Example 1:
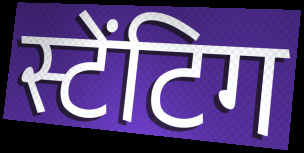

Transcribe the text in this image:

स्टेंटिग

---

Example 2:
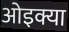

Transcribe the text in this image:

ओइक्या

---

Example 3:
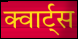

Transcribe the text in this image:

क्वार्ट्स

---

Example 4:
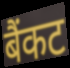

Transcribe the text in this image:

बैंकट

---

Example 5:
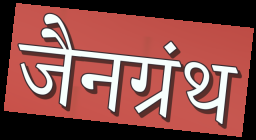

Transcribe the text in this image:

जैनग्रंथ